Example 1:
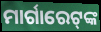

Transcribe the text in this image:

ମାର୍ଗାରେଟ୍‍ଙ୍କ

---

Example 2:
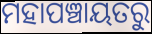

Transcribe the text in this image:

ମହାପଞ୍ଚାୟତରୁ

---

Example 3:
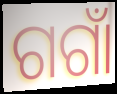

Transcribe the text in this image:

ଗଗାଁ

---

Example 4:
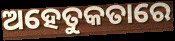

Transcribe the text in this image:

ଅହେତୁକତାରେ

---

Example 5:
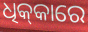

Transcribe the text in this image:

ଧିକ୍‌କାରେ